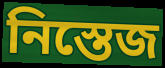
নিস্তেজ